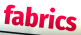
fabrics